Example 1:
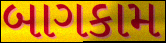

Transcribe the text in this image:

બાગકામ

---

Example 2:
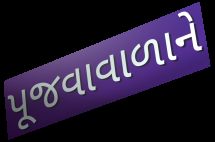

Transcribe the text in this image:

પૂજવાવાળાને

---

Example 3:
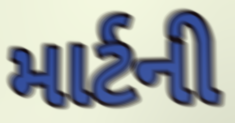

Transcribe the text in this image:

માર્ટની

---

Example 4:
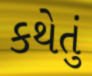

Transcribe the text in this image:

કથેતું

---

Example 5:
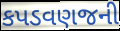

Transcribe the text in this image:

કપડવણજની